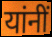
यांनीं